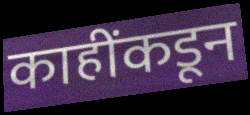
काहींकडून